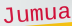
Jumua